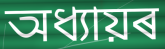
অধ্যায়ৰ